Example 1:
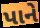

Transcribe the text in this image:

પાને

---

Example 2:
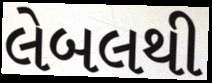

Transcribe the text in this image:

લેબલથી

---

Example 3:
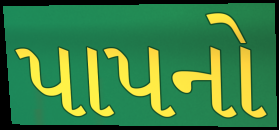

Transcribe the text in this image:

પાપનો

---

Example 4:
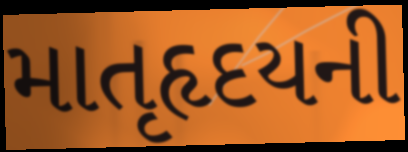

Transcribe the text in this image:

માતૃહૃદયની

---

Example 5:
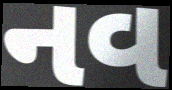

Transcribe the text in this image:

નવ